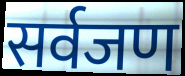
सर्वजण